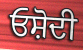
ਓਸ਼ੋਦੀ